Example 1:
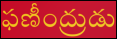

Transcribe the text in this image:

ఫణీంద్రుడు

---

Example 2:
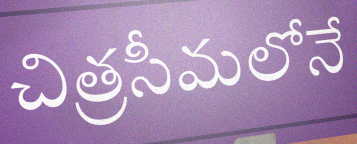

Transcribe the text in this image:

చిత్రసీమలోనే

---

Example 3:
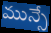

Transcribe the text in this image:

మున్సే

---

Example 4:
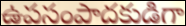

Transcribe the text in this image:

ఉపసంపాదకుడిగా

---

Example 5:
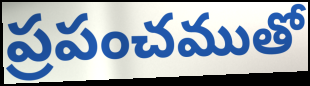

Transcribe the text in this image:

ప్రపంచముతో